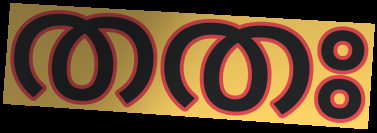
തതഃ